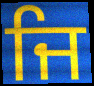
ਜਿ